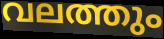
വലത്തും